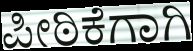
ಪೀಠಿಕೆಗಾಗಿ